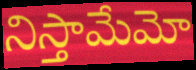
నిస్తామేమో